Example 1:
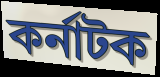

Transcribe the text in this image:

কর্নাটক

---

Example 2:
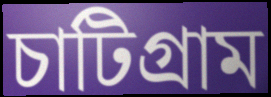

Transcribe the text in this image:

চাটিগ্রাম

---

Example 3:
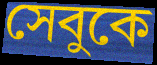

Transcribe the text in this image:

সেবুকে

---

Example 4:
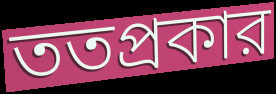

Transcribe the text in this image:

ততপ্রকার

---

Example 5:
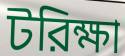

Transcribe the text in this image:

টরিক্ষা